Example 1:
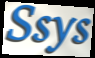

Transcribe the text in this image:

Ssys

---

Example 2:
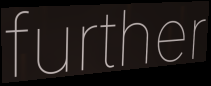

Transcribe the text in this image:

further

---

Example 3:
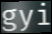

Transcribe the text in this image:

gyi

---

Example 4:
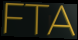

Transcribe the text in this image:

FTA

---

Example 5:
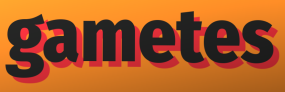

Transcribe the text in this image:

gametes